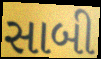
સાબી